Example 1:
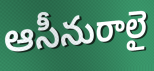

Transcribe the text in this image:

ఆసీనురాలై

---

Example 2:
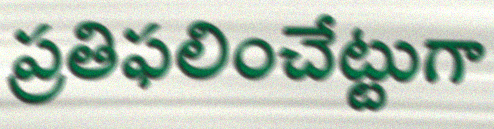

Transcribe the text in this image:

ప్రతిఫలించేట్టుగా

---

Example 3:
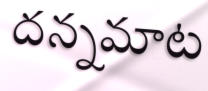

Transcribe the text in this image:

దన్నమాట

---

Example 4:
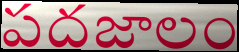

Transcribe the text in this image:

పదజాలం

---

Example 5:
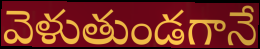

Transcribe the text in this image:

వెళుతుండగానే